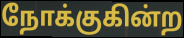
நோக்குகின்ற